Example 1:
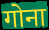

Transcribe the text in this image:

गोना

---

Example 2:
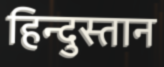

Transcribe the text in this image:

हिन्दुस्तान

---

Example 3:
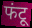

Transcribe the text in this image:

फंटू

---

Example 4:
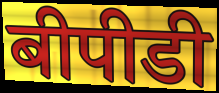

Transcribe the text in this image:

बीपीडी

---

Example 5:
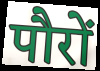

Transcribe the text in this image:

पौरों